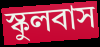
স্কুলবাস